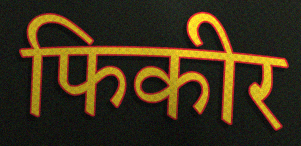
फिकीर